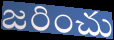
జరించు